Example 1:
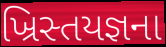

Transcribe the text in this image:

ખ્રિસ્તયજ્ઞના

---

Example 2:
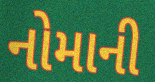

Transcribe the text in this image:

નોમાની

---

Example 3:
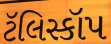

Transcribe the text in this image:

ટૅલિસ્કૉપ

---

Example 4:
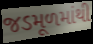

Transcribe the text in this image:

જડમૂળમાંથી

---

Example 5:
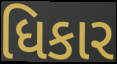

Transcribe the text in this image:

ધિકાર